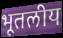
भूतलीय